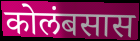
कोलंबसास